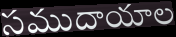
సముదాయాల